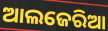
ଆଲଜେରିଆ